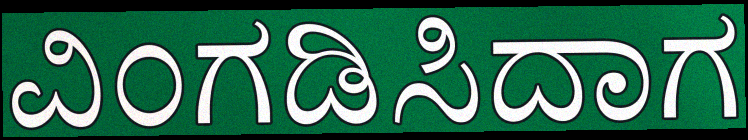
ವಿಂಗಡಿಸಿದಾಗ